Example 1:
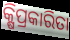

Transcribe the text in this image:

କ୍ଷିପ୍ରକାରିତା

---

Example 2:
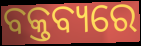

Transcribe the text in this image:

ବକ୍ତବ୍ୟରେ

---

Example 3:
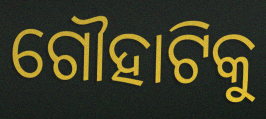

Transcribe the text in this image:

ଗୌହାଟିକୁ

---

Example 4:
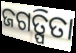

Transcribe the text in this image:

ଜଗତ୍ପିତା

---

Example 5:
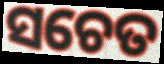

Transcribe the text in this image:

ସଚେତ